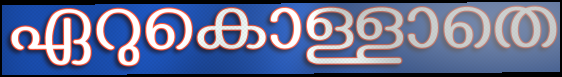
ഏറുകൊള്ളാതെ